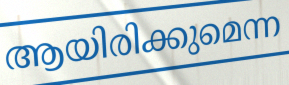
ആയിരിക്കുമെന്ന